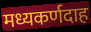
मध्यकर्णदाह